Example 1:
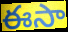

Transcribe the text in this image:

ఈసా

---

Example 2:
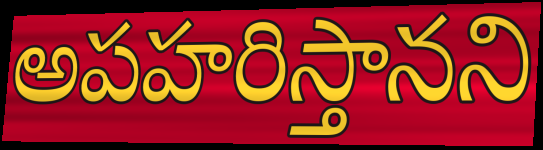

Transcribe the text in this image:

అపహరిస్తానని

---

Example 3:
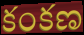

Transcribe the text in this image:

కంకణ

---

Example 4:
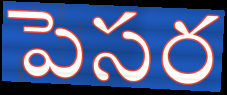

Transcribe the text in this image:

పెసర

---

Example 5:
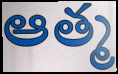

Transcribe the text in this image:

ఆత్మ